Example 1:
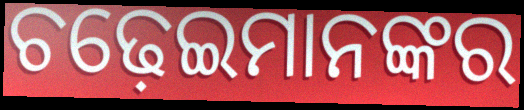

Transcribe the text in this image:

ଚଢ଼େଇମାନଙ୍କର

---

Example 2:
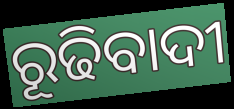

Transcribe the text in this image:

ରୂଢିବାଦୀ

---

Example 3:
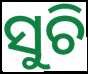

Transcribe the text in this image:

ସୁଚି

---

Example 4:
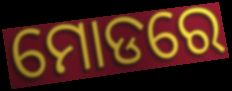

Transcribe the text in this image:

ମୋଡରେ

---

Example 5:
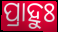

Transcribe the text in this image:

ପ୍ରାହୁଃ